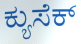
ಕ್ಯುಸೆಕ್